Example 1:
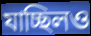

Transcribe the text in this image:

যাচ্ছিলও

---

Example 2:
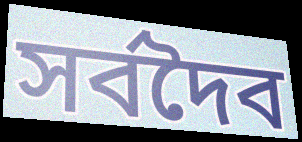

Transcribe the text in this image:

সর্বদৈব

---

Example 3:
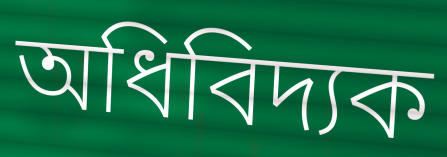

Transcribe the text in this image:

অধিবিদ্যক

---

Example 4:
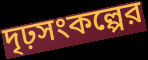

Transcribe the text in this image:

দৃঢ়সংকল্পের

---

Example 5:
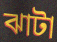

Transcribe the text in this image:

ঝাটা